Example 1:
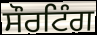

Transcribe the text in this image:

ਸੌਰਟਿੰਗ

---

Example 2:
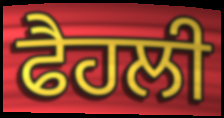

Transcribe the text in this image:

ਫੈਹਲੀ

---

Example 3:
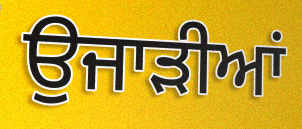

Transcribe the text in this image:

ਉਜਾੜੀਆਂ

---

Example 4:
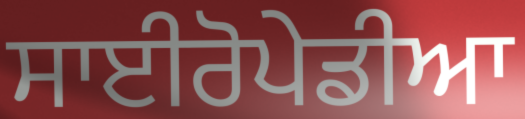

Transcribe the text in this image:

ਸਾਈਰੋਪੇਡੀਆ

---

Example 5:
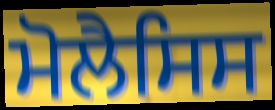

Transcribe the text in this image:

ਮੋਲੈਸਿਸ